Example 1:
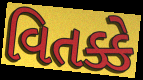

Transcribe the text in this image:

વિતક્કે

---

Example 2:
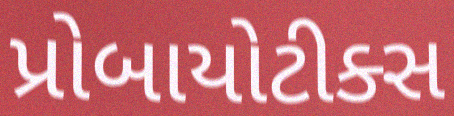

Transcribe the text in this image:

પ્રોબાયોટીક્સ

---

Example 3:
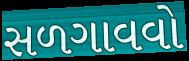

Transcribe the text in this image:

સળગાવવો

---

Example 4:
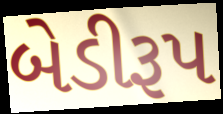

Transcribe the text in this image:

બેડીરૂપ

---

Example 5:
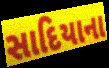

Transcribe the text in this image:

સાદિયાના